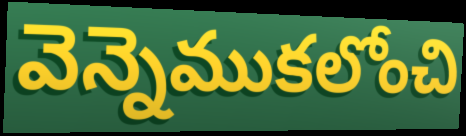
వెన్నెముకలోంచి